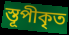
স্তূপীকৃত